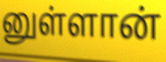
னுள்ளான்